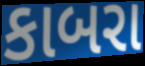
કાબરા